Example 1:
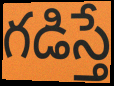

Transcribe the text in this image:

గడిస్తే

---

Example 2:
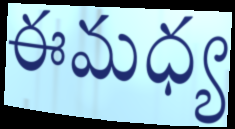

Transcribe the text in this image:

ఈమధ్య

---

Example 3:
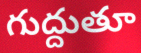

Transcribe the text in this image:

గుద్దుతూ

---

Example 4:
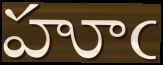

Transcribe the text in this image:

హూఁ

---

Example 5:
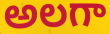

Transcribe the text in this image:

అలగా